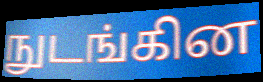
நுடங்கின